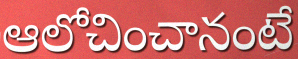
ఆలోచించానంటే